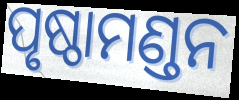
ପୃଷ୍ଠାମଣ୍ଡନ